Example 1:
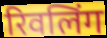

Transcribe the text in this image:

रिवलिंग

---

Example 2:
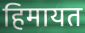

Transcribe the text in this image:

हिमायत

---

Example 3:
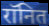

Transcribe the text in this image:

रॉनित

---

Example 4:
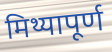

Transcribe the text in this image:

मिथ्यापूर्ण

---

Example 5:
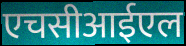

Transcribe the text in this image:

एचसीआईएल